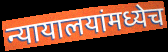
न्यायालयांमध्येच